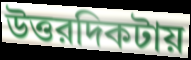
উত্তরদিকটায়